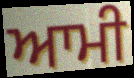
ਆਮੀ